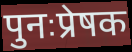
पुनःप्रेषक